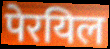
पेरयिल